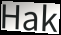
Hak